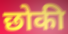
छोकी